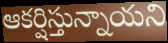
ఆకర్షిస్తున్నాయని